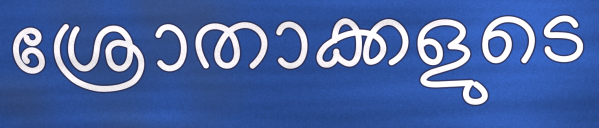
ശ്രോതാക്കളുടെ